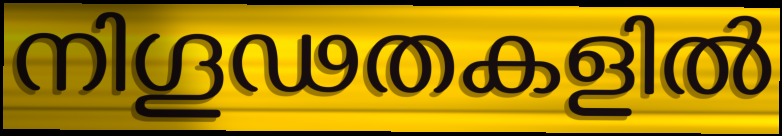
നിഗൂഢതകളിൽ